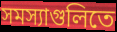
সমস্যাগুলিতে